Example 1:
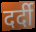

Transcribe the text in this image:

दर्दी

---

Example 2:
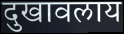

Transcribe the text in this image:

दुखावलाय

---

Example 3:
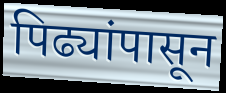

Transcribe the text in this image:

पिढ्यांपासून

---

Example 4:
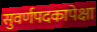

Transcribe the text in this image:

सुवर्णपदकापेक्षा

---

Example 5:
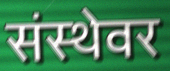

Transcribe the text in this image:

संस्थेवर